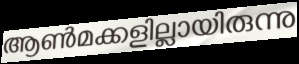
ആൺമക്കളില്ലായിരുന്നു